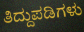
ತಿದ್ದುಪಡಿಗಳು